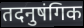
तदनुषंगिक